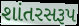
શાંતરસરૂપ